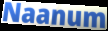
Naanum